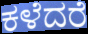
ಕಳೆದರೆ